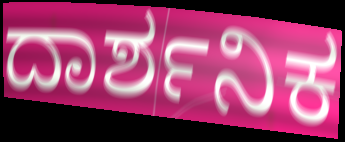
ದಾರ್ಶನಿಕ